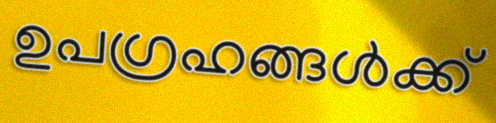
ഉപഗ്രഹങ്ങൾക്ക്